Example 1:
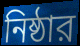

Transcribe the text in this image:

নিষ্ঠার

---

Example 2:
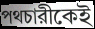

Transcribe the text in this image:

পথচারীকেই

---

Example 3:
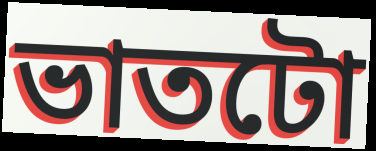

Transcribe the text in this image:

ভাতটো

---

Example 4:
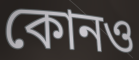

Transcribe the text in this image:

কোনও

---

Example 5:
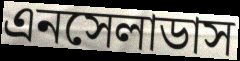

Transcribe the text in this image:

এনসেলাডাস